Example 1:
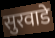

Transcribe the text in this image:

सुरवाडे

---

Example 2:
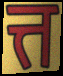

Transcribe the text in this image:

त्त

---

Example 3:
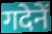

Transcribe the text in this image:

गदेनें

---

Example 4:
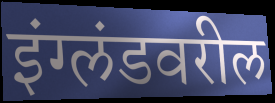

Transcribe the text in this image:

इंग्लंडवरील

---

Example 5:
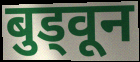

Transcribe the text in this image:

बुड्वून